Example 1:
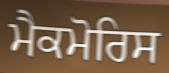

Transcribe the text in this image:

ਮੈਕਮੋਰਿਸ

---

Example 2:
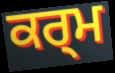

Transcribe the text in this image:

ਕਰ੍ਮ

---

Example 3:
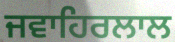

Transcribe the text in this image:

ਜਵਾਹਿਰਲਾਲ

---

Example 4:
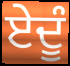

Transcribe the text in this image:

ਏਦੂੰ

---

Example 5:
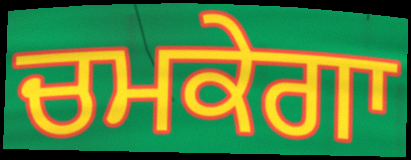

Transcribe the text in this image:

ਚਮਕੇਗਾ